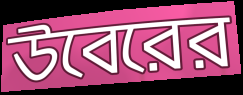
উবেরের